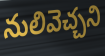
నులివెచ్చని